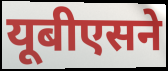
यूबीएसने